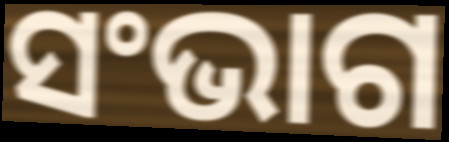
ସଂଭାଗ